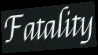
Fatality